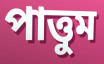
পাত্তুম